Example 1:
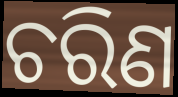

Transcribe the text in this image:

ଚରିଣ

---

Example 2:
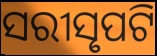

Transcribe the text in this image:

ସରୀସୃପଟି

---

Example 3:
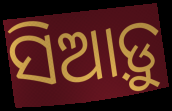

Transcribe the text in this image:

ସିଆଡ଼ୁ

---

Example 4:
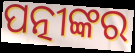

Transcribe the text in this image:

ପତ୍ନୀଙ୍କର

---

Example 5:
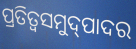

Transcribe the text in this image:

ପ୍ରତିତ୍ଵସମୁଦ୍‌ପାଦର